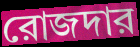
রোজদার